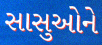
સાસુઓને